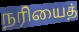
நரியைத்